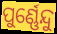
ପୁର୍ଣ୍ଣେନ୍ଦୁ